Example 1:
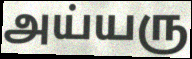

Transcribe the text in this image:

அய்யரு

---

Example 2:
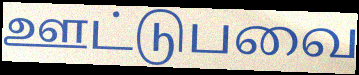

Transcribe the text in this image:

ஊட்டுபவை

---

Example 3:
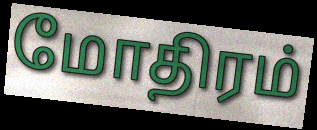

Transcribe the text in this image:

மோதிரம்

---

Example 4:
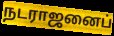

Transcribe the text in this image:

நடராஜனைப்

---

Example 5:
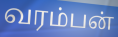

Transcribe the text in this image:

வரம்பன்